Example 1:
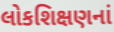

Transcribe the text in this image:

લોકશિક્ષણનાં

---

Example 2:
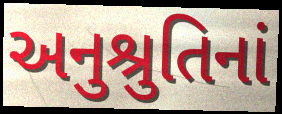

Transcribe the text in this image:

અનુશ્રુતિનાં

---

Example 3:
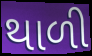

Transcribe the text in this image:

થાળી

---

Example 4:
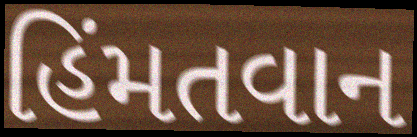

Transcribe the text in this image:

હિંમતવાન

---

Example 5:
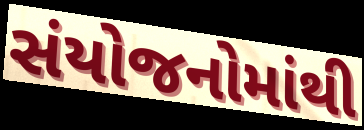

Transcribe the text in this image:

સંયોજનોમાંથી